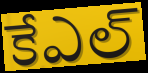
కేఎల్